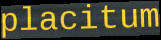
placitum